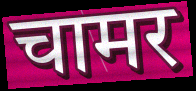
चामर